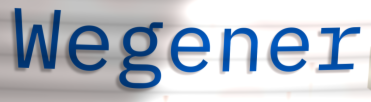
Wegener